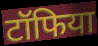
टॉफिया